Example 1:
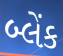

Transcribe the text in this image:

બ્લેંક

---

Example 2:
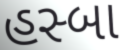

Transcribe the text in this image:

હસ્બા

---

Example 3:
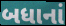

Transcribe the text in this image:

બધાનાં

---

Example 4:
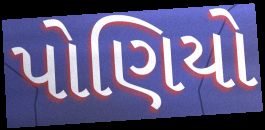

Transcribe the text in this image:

પોણિયો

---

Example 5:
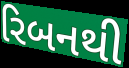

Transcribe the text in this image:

રિબનથી